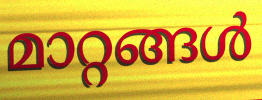
മാറ്റങ്ങൾ